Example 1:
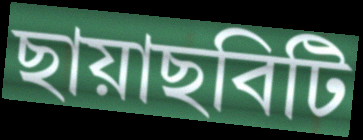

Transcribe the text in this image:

ছায়াছবিটি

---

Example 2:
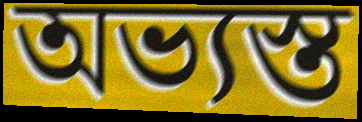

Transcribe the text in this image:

অভ্যস্ত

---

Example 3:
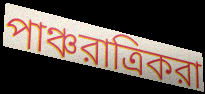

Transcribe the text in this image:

পাঞ্চরাত্রিকরা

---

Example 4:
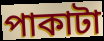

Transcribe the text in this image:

পাকাটা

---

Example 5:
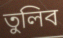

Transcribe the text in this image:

তুলিব